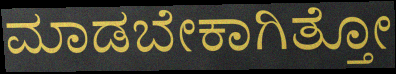
ಮಾಡಬೇಕಾಗಿತ್ತೋ